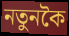
নতুনকৈ